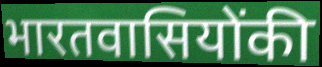
भारतवासियोंकी